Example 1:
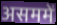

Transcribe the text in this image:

असममें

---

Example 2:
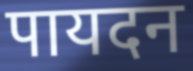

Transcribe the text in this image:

पायदन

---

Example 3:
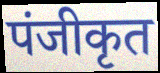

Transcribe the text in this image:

पंजीकृत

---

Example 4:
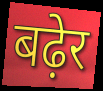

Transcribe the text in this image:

बढ़ेर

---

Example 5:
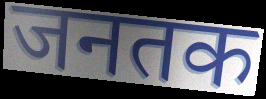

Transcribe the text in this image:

जनतक